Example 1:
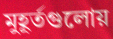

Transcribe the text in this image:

মুহূর্তগুলোয়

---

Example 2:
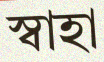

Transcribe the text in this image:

স্বাহা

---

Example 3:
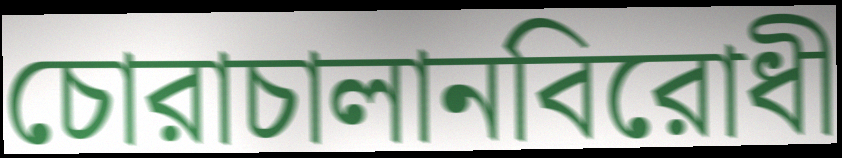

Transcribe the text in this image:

চোরাচালানবিরোধী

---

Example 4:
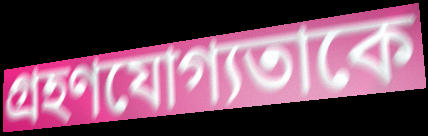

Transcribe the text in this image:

গ্রহণযোগ্যতাকে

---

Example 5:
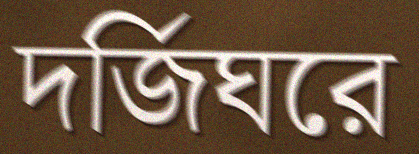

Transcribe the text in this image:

দর্জিঘরে